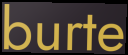
burte